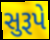
સુરૂપે